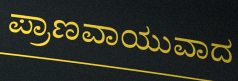
ಪ್ರಾಣವಾಯುವಾದ